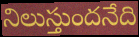
నిలుస్తుందనేది